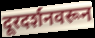
दूरदर्शनवरून